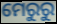
ମେରୁରୁ